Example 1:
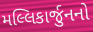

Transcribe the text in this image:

મલ્લિકાર્જુનનો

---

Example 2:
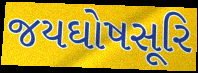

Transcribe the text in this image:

જયઘોષસૂરિ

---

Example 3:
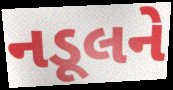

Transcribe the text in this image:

નડૂલને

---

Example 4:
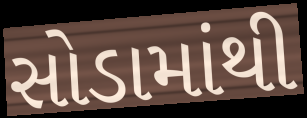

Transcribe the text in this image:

સોડામાંથી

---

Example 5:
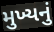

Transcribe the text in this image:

મુખ્યનું